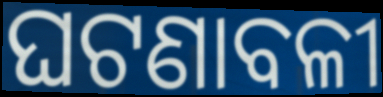
ଘଟଣାବଳୀ